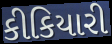
કીકિયારી